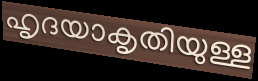
ഹൃദയാകൃതിയുള്ള